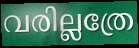
വരില്ലത്രേ